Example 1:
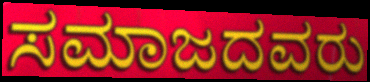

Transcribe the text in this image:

ಸಮಾಜದವರು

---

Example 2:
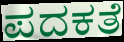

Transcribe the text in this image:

ಪದಕತೆ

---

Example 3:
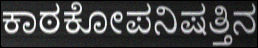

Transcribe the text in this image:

ಕಾಠಕೋಪನಿಷತ್ತಿನ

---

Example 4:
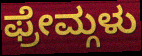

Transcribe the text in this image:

ಫ್ರೇಮ್ಗಳು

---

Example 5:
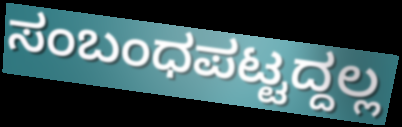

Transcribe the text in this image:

ಸಂಬಂಧಪಟ್ಟದ್ದಲ್ಲ